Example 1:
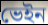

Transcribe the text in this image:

ভেইন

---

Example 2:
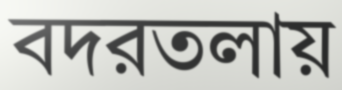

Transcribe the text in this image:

বদরতলায়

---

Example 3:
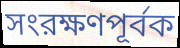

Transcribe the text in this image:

সংরক্ষণপূর্বক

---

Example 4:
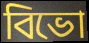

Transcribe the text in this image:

বিভো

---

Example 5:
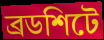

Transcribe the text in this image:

ব্রডশিটে